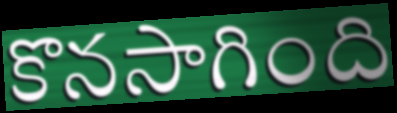
కొనసాగింది